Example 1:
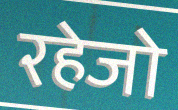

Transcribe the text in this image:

रहेजो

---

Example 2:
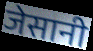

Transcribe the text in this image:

जेसानी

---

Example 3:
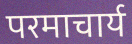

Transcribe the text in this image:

परमाचार्य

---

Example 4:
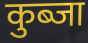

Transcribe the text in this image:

कुब्जा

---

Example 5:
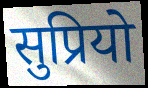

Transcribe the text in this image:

सुप्रियो